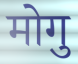
मोगु